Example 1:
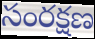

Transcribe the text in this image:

సంరక్షణ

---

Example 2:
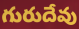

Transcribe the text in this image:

గురుదేవు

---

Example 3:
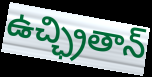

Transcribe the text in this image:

ఉచ్ఛ్రితాన్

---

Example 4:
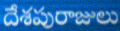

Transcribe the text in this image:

దేశపురాజులు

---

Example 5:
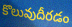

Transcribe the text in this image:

కొలువుదీరడం